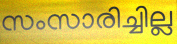
സംസാരിച്ചില്ല